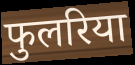
फुलरिया